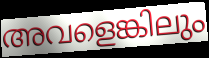
അവളെങ്കിലും